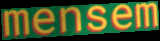
mensem